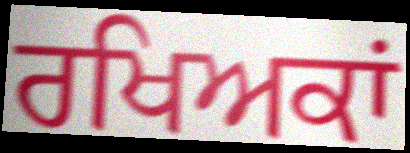
ਰਖਿਅਕਾਂ